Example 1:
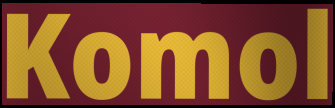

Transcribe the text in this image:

Komol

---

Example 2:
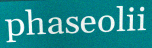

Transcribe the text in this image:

phaseolii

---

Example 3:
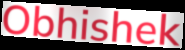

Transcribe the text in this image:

Obhishek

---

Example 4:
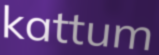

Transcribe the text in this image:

kattum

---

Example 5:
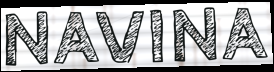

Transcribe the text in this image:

NAVINA